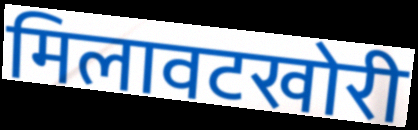
मिलावटखोरी